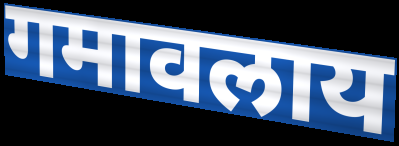
गमावलाय